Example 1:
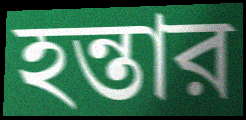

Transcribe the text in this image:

হন্তার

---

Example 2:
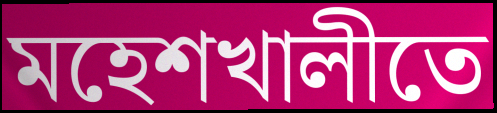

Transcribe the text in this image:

মহেশখালীতে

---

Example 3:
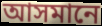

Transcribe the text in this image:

আসমানে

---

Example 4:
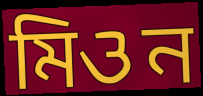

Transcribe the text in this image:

মিওন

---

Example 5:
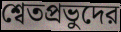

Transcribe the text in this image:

শ্বেতপ্রভুদের